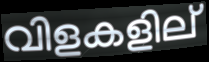
വിളകളില്